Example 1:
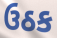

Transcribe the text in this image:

ઉઠક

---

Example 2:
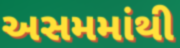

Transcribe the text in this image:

અસમમાંથી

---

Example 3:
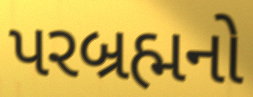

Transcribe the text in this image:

પરબ્રહ્મનો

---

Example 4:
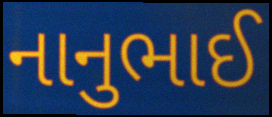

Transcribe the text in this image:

નાનુભાઈ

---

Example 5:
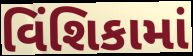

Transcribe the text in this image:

વિંશિકામાં